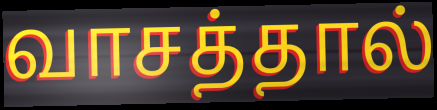
வாசத்தால்